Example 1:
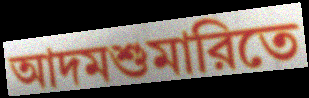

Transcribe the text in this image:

আদমশুমারিতে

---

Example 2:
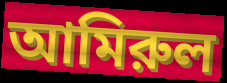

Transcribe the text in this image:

আমিরুল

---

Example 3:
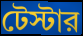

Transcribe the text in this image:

টেস্টার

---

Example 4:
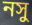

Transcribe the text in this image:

নসু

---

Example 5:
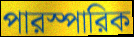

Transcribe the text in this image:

পারস্পারিক